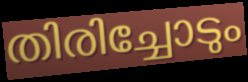
തിരിച്ചോടും